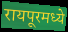
रायपूरमध्ये